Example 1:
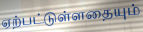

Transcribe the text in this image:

ஏற்பட்டுள்ளதையும்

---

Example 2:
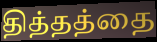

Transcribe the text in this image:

தித்தத்தை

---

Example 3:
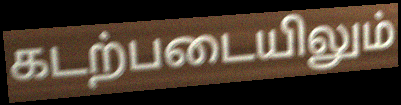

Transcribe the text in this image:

கடற்படையிலும்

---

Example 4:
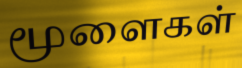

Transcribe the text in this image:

மூளைகள்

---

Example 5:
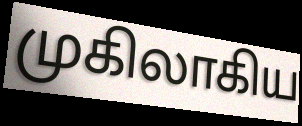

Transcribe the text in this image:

முகிலாகிய